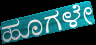
ಹೂಗಳೇ